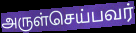
அருள்செய்பவர்